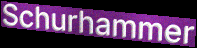
Schurhammer